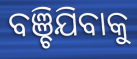
ବଞ୍ଚିଯିବାକୁ